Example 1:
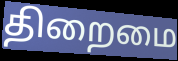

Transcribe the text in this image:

திறைமை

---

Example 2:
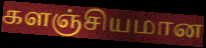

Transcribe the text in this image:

களஞ்சியமான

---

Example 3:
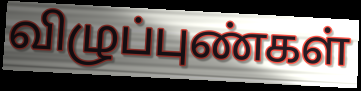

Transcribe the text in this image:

விழுப்புண்கள்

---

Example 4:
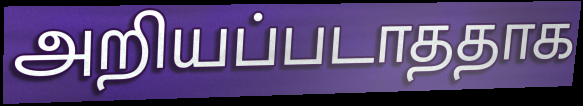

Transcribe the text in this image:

அறியப்படாததாக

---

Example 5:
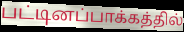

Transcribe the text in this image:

பட்டினப்பாக்கத்தில்